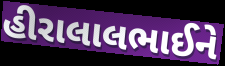
હીરાલાલભાઈને